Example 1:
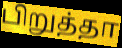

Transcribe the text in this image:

பிறுத்தா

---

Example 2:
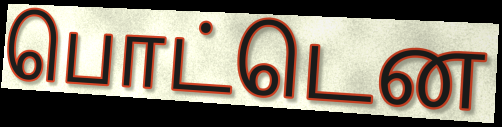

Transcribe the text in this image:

பொட்டென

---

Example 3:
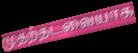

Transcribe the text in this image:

முதற்தடவையாக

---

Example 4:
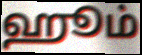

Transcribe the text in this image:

ஹூம்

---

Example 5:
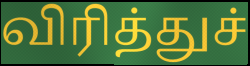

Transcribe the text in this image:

விரித்துச்